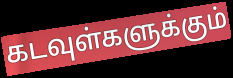
கடவுள்களுக்கும்